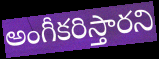
అంగీకరిస్తారని